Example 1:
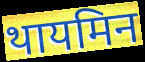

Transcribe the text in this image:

थायमिन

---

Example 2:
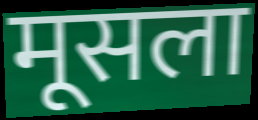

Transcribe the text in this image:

मूसला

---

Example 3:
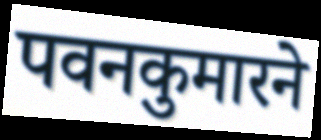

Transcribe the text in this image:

पवनकुमारने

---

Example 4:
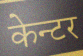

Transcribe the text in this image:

केन्टर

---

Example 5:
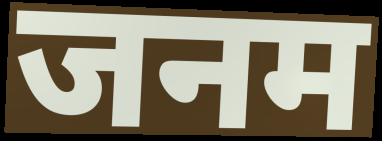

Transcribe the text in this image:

जनम